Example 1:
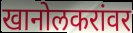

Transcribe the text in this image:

खानोलकरांवर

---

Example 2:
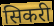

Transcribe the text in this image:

सिकरी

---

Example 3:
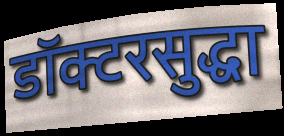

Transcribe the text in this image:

डॉक्टरसुद्धा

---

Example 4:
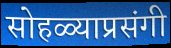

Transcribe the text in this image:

सोहळ्याप्रसंगी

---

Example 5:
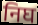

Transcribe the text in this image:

निघ